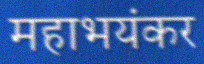
महाभयंकर